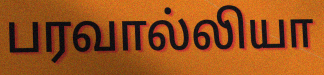
பரவால்லியா